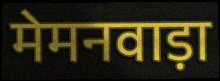
मेमनवाड़ा